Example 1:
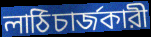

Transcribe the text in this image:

লাঠিচার্জকারী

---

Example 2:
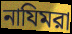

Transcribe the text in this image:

নাযিমরা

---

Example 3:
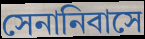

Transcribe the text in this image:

সেনানিবাসে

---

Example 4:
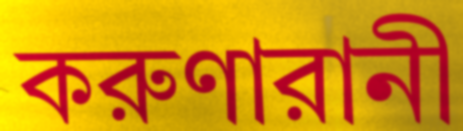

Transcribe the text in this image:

করুণারানী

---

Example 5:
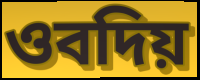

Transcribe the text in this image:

ওবদিয়